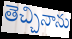
తెచ్చినాను